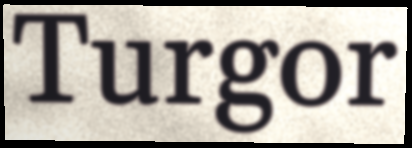
Turgor